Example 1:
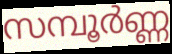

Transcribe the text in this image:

സമ്പൂർണ്ണ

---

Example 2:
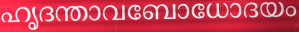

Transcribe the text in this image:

ഹൃദന്താവബോധോദയം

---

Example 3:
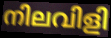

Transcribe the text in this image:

നിലവിളി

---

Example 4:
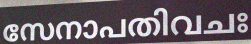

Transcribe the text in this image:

സേനാപതിവചഃ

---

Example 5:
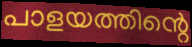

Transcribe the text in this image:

പാളയത്തിന്റെ